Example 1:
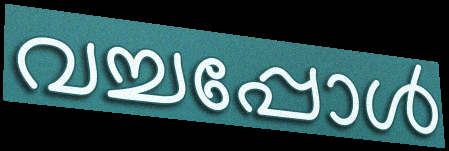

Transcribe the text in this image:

വച്ചപ്പോൾ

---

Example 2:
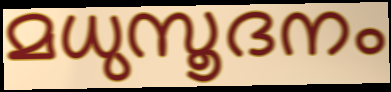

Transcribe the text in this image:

മധുസൂദനം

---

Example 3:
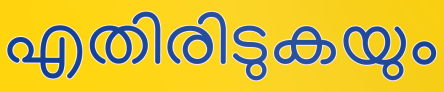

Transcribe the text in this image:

എതിരിടുകയും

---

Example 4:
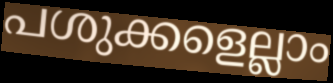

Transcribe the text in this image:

പശുക്കളെല്ലാം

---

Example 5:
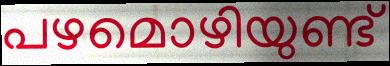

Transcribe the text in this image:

പഴമൊഴിയുണ്ട്